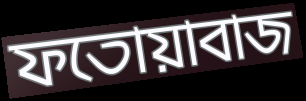
ফতোয়াবাজ